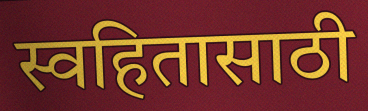
स्वहितासाठी